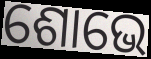
ଶୋଭେ